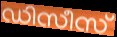
ഡിസീസ്